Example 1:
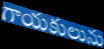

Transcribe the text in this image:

గాయకులును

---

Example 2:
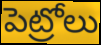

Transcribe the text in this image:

పెట్రోలు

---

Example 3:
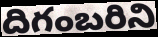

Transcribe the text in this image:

దిగంబరిని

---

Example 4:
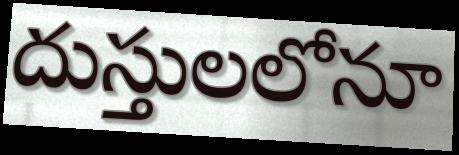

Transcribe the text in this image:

దుస్తులలోనూ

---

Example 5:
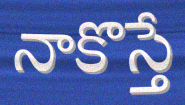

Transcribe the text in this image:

నాకొస్తే